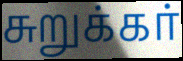
சுறுக்கர்